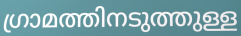
ഗ്രാമത്തിനടുത്തുള്ള